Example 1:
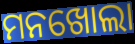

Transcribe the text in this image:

ମନଖୋଲା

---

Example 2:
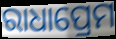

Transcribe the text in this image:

ରାଧାପ୍ରେମ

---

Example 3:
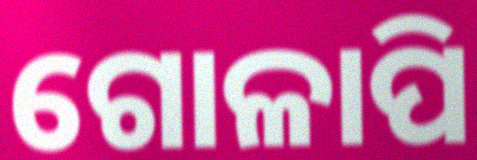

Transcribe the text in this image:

ଗୋଳାପି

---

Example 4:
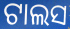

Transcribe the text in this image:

ଟାଲସ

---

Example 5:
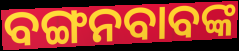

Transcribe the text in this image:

ବଙ୍ଗନବାବଙ୍କ